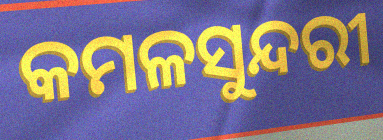
କମଳସୁନ୍ଦରୀ